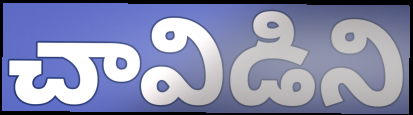
చావిడిని